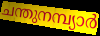
ചന്തുനമ്പ്യാർ